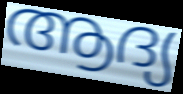
ആദ്യ